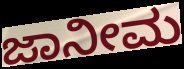
ಜಾನೀಮ